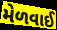
મેળવાઈ